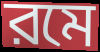
রমে